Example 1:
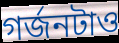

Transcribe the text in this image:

গর্জনটাও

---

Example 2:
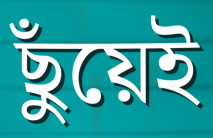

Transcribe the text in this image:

ছুঁয়েই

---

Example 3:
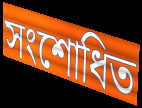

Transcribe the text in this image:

সংশোধিত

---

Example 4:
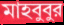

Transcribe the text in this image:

মাহবুবুর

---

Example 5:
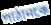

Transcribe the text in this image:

পাঠানকে